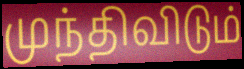
முந்திவிடும்